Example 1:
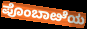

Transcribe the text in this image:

ಪೊಂಬಾೞೆಯ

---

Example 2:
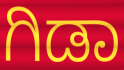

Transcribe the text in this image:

ಗಿಡಾ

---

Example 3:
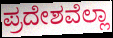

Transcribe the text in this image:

ಪ್ರದೇಶವೆಲ್ಲಾ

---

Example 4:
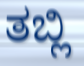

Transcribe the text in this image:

ತಬ್ಲಿ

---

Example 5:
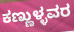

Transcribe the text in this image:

ಕಣ್ಣುಳ್ಳವರ